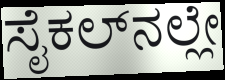
ಸೈಕಲ್‌ನಲ್ಲೇ